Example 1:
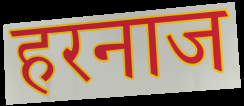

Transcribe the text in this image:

हरनाज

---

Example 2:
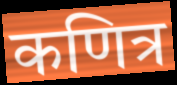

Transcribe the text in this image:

कणित्र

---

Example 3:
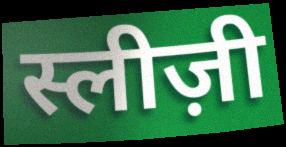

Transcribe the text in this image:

स्लीज़ी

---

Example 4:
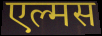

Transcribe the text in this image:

एल्मस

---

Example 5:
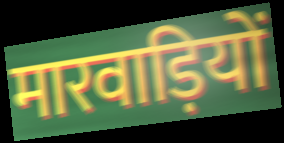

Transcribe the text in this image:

मारवाड़ियों